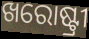
ଖରୋଷ୍ଟ୍ରୀ